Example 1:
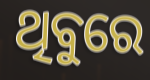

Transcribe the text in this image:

ଥିବୁରେ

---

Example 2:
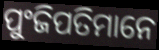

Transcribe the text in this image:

ପୁଂଜିପତିମାନେ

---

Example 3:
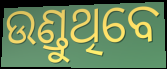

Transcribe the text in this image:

ଉଣ୍ଡୁଥିବେ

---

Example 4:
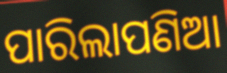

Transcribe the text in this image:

ପାରିଲାପଣିଆ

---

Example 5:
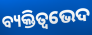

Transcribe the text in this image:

ବ୍ୟକ୍ତିତ୍ୱଭେଦ